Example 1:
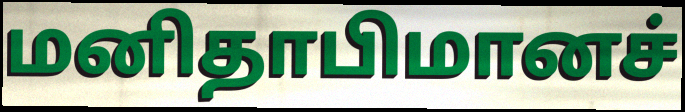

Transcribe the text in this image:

மனிதாபிமானச்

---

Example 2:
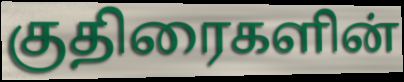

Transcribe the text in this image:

குதிரைகளின்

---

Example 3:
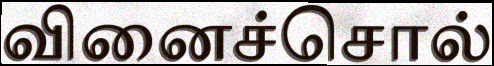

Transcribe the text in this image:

வினைச்சொல்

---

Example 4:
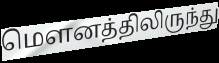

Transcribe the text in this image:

மௌனத்திலிருந்து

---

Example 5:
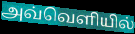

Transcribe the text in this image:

அவ்வெளியில்